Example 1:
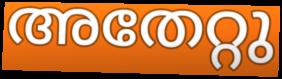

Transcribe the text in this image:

അതേറ്റു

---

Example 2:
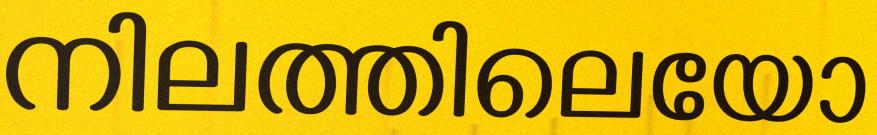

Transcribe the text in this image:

നിലത്തിലെയോ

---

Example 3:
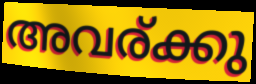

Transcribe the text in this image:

അവര്ക്കു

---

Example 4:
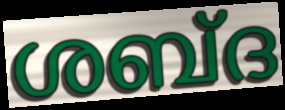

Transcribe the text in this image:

ശബ്‌ദ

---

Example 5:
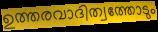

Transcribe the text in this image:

ഉത്തരവാദിത്വത്തോടും